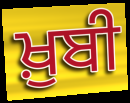
ਖ਼ੁਬੀ